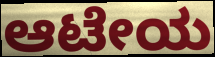
ಆಟೇಯ